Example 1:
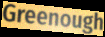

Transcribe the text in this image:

Greenough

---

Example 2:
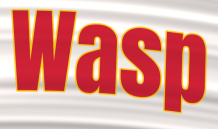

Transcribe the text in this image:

Wasp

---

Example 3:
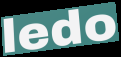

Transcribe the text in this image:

ledo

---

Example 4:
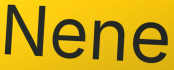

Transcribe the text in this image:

Nene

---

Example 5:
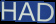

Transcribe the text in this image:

HAD